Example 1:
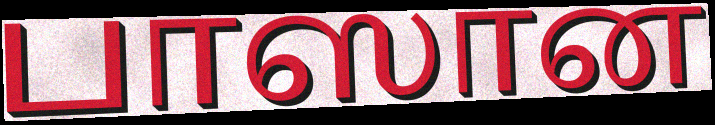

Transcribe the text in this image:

பாஸான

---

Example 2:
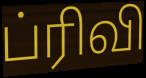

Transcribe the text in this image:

ப்ரிவி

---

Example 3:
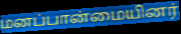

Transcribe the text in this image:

மனப்பான்மையினர்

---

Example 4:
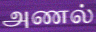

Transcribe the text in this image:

அணல்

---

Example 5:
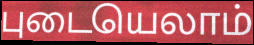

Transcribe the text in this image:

புடையெலாம்